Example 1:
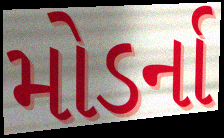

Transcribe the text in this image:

મોડર્ના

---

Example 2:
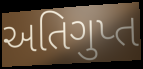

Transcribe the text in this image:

અતિગુપ્ત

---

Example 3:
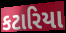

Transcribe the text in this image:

કટારિયા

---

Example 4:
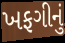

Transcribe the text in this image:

ખફગીનું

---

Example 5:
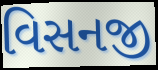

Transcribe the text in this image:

વિસનજી